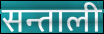
सन्ताली